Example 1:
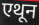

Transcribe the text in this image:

एथून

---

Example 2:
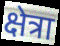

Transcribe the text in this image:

क्षेत्रा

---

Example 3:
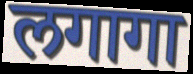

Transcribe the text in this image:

लगागा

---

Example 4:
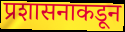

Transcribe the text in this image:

प्रशासनाकडून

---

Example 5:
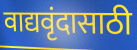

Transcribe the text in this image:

वाद्यवृंदासाठी